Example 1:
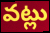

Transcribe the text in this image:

వట్లు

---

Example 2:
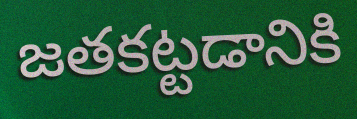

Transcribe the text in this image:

జతకట్టడానికి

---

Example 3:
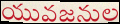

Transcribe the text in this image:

యువజనుల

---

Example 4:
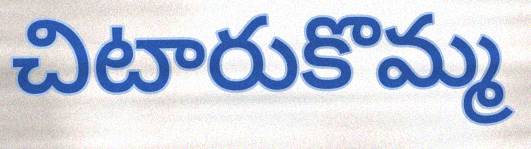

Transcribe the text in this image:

చిటారుకొమ్మ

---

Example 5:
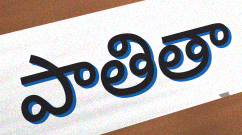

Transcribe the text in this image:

పాతితా